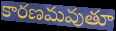
కారణమవుతూ